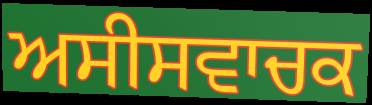
ਅਸੀਸਵਾਚਕ